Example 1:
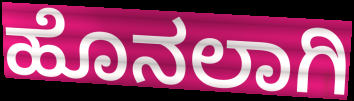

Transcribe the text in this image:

ಹೊನಲಾಗಿ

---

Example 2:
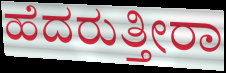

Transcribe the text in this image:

ಹೆದರುತ್ತೀರಾ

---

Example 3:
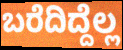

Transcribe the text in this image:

ಬರೆದಿದ್ದೆಲ್ಲ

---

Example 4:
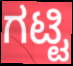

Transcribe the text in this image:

ಗಟ್ಟಿ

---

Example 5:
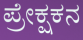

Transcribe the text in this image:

ಪ್ರೇಕ್ಷಕನ